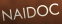
NAIDOC